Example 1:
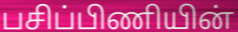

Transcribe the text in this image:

பசிப்பிணியின்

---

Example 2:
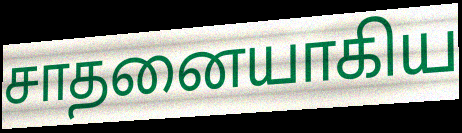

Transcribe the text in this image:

சாதனையாகிய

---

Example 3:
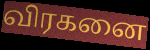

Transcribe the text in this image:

விரகனை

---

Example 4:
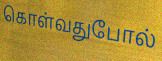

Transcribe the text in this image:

கொள்வதுபோல்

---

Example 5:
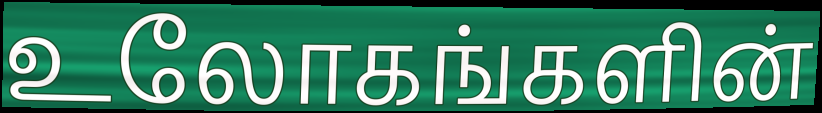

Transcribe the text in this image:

உலோகங்களின்